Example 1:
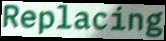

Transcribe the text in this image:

Replacing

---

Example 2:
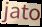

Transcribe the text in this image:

jato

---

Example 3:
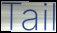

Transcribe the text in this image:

Tail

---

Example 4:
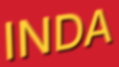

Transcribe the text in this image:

INDA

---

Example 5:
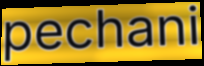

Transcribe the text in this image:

pechani